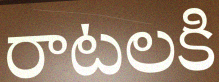
రాటలకి